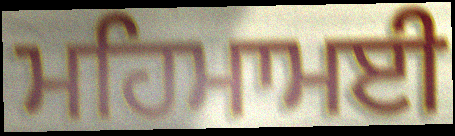
ਮਹਿਮਾਮਈ